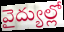
వైద్యుల్లో